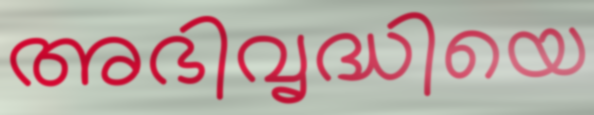
അഭിവൃദ്ധിയെ